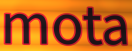
mota